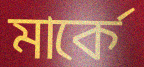
মার্কে